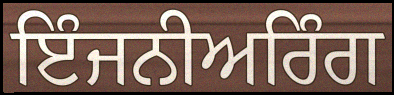
ਇੰਜਨੀਅਰਿੰਗ